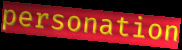
personation